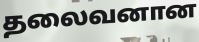
தலைவனான